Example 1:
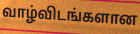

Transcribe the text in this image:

வாழ்விடங்களான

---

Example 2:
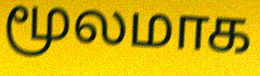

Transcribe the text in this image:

மூலமாக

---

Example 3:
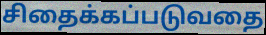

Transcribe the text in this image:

சிதைக்கப்படுவதை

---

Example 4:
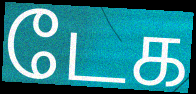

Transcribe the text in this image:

டேக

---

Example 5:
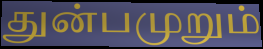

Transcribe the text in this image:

துன்பமுறும்